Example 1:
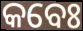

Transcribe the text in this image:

କବେଃ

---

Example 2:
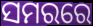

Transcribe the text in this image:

ସମରରେ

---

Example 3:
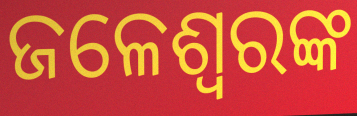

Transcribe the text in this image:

ଜଳେଶ୍ଵରଙ୍କ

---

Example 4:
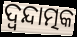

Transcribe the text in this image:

ଦ୍ଵନ୍ଦାତ୍ମକ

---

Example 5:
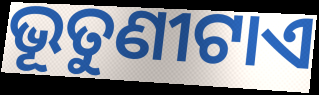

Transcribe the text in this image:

ଭୂତୁଣୀଟାଏ